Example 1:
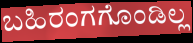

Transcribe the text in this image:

ಬಹಿರಂಗಗೊಂಡಿಲ್ಲ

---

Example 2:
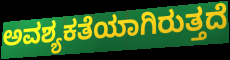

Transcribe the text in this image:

ಅವಶ್ಯಕತೆಯಾಗಿರುತ್ತದೆ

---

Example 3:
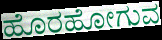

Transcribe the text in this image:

ಹೊರಹೋಗುವ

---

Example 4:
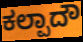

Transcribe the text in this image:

ಕಲ್ಪಾದೌ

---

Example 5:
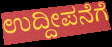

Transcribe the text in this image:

ಉದ್ದೀಪನೆಗೆ